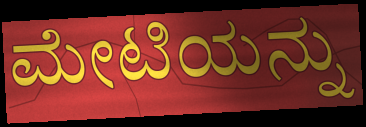
ಮೇಟಿಯನ್ನು